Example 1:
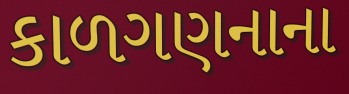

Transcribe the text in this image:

કાળગણનાના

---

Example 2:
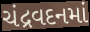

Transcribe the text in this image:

ચંદ્રવદનમાં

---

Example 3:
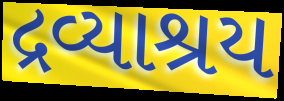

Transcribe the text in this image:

દ્રવ્યાશ્રય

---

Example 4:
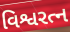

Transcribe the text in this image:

વિશ્વરત્ન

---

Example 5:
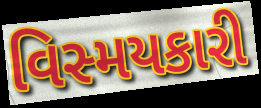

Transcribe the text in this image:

વિસ્મયકારી